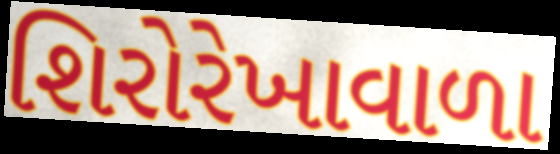
શિરોરેખાવાળા